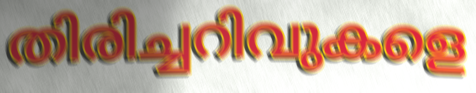
തിരിച്ചറിവുകളെ